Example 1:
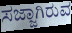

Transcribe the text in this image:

ಸಜ್ಜಾಗಿರುವ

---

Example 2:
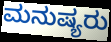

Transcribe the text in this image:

ಮನುಷ್ಯರು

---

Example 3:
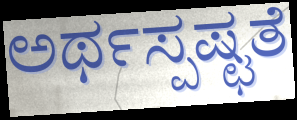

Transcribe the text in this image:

ಅರ್ಥಸ್ಪಷ್ಟತೆ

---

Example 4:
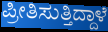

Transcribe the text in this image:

ಪ್ರೀತಿಸುತ್ತಿದ್ದಾಳೆ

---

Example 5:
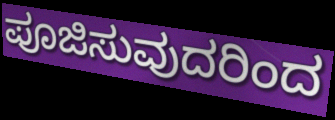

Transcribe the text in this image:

ಪೂಜಿಸುವುದರಿಂದ